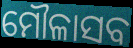
ମୌଳାସବ